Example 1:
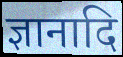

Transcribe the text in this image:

ज्ञानादि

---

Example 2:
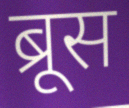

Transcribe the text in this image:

ब्रूस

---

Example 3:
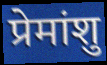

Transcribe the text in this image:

प्रेमांशु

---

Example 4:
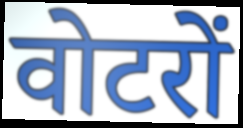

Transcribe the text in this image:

वोटरों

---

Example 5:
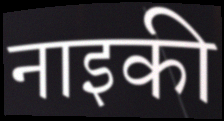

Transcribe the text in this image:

नाइकी